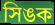
সিঙক